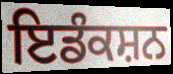
ਇਡੰਕਸ਼ਨ